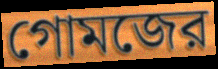
গোমজের